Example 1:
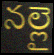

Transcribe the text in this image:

నల్లై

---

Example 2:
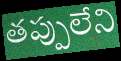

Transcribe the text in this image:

తప్పులేని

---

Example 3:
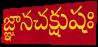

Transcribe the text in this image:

జ్ఞానచక్షుషః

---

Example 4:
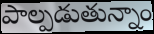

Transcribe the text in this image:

పాల్పడుతున్నాం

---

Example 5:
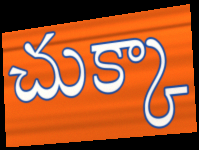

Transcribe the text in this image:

చుక్కా